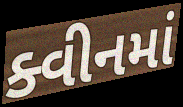
ક્વીનમાં